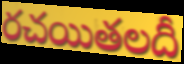
రచయితలదీ